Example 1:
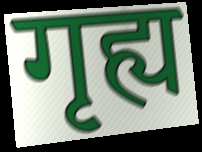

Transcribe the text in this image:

गृह्य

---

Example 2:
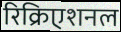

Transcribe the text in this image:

रिक्रिएशनल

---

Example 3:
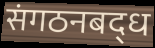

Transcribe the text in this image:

संगठनबद्ध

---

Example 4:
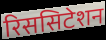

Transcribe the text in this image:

रिससिटेशन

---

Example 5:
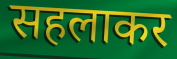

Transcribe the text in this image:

सहलाकर